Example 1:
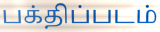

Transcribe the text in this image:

பக்திப்படம்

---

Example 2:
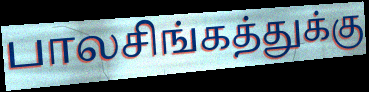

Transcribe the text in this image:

பாலசிங்கத்துக்கு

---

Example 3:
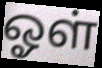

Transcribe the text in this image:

ஓள்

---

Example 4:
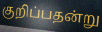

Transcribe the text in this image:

குறிப்பதன்று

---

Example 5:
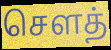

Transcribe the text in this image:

சௌத்